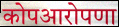
कोपआरोपणा